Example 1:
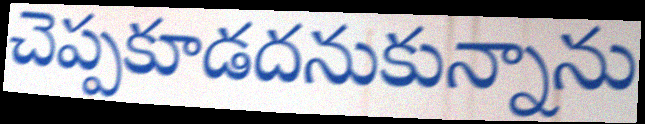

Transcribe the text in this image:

చెప్పకూడదనుకున్నాను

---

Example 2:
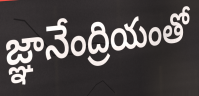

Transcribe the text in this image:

జ్ఞానేంద్రియంతో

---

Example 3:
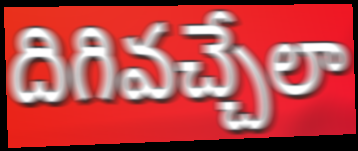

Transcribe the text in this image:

దిగివచ్చేలా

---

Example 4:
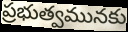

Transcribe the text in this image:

ప్రభుత్వమునకు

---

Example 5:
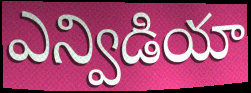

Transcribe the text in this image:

ఎన్విడియా